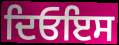
ਦਿਓਇਸ